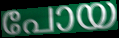
പോയ